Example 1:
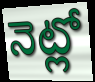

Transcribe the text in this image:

నెట్లో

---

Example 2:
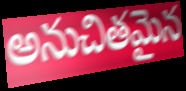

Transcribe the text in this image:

అనుచితమైన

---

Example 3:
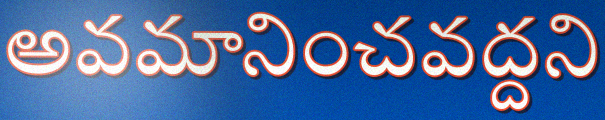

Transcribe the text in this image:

అవమానించవద్దని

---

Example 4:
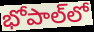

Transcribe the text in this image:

భోపాల్‌లో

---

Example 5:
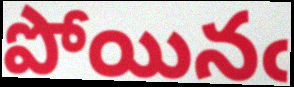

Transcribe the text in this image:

పోయినఁ